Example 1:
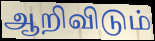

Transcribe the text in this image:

ஆறிவிடும்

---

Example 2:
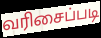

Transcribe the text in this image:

வரிசைப்படி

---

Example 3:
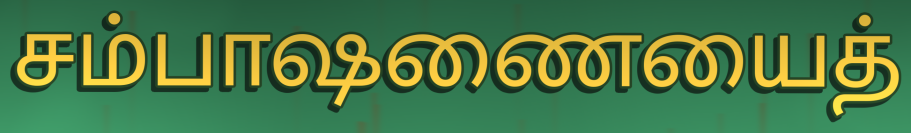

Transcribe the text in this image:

சம்பாஷணையைத்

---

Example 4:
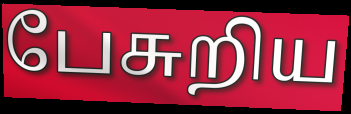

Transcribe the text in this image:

பேசுறிய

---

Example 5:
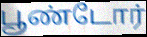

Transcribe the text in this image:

பூண்டோர்